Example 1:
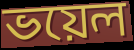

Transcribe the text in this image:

ভয়েল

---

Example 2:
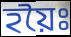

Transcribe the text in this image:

হয়ৈঃ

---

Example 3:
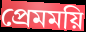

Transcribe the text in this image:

প্রেমময়ি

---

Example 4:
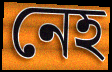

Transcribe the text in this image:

নেহ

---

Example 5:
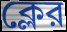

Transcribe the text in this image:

ক্লের